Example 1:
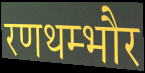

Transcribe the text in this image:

रणथम्भौर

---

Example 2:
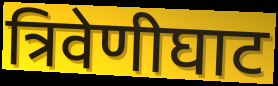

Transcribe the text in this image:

त्रिवेणीघाट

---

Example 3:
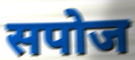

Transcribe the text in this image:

सपोज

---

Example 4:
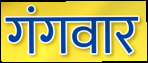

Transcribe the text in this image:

गंगवार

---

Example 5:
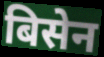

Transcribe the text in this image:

बिसेन